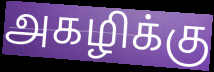
அகழிக்கு